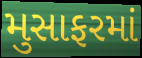
મુસાફરમાં